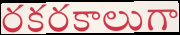
రకరకాలుగా